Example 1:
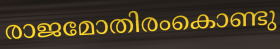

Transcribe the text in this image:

രാജമോതിരംകൊണ്ടു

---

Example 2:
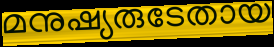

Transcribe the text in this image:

മനുഷ്യരുടേതായ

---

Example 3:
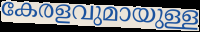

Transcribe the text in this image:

കേരളവുമായുള്ള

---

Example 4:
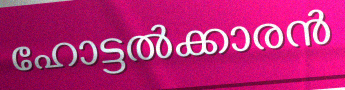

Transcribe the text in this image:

ഹോട്ടൽക്കാരൻ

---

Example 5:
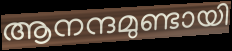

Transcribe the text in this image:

ആനന്ദമുണ്ടായി